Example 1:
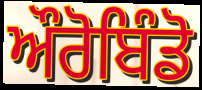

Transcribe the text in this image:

ਔਰੋਬਿੰਡੋ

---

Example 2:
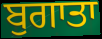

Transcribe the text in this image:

ਬੁਗਾਤਾ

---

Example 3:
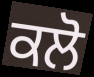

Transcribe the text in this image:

ਕਲੋ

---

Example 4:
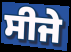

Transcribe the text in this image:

ਸੀਜੇ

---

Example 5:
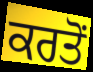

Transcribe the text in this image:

ਕਰਤੋਂ